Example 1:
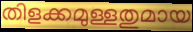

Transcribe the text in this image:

തിളക്കമുള്ളതുമായ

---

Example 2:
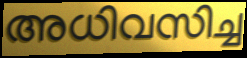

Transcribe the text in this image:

അധിവസിച്ച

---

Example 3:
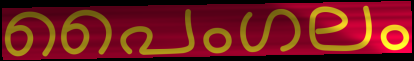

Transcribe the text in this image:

പൈംഗലം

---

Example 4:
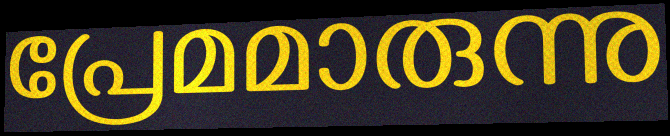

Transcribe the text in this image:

പ്രേമമാരുന്നു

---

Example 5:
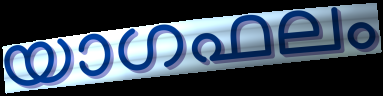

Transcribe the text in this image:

യാഗഫലം